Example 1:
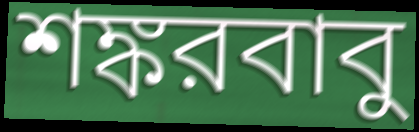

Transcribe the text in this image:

শঙ্করবাবু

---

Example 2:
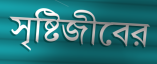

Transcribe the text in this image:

সৃষ্টিজীবের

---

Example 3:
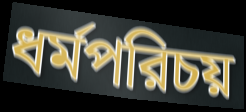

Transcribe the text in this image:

ধর্মপরিচয়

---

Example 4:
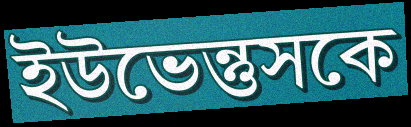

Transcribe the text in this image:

ইউভেন্তুসকে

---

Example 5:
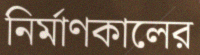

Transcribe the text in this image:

নির্মাণকালের